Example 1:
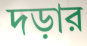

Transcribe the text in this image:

দড়ার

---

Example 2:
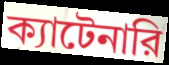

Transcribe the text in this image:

ক্যাটেনারি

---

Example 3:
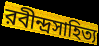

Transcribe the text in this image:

রবীন্দ্রসাহিত্য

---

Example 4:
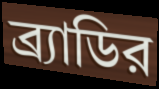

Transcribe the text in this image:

ব্র্যাডির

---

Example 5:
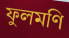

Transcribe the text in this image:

ফুলমণি